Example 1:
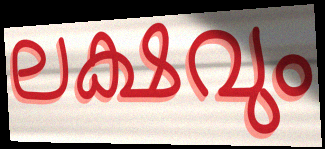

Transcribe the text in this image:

ലക്ഷവും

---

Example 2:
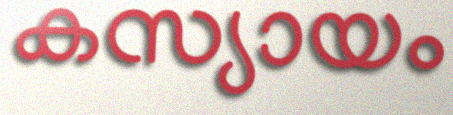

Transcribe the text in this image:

കസ്യായം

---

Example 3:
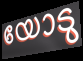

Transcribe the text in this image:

യോടു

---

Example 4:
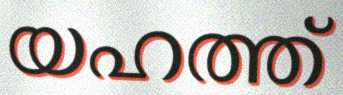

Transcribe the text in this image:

യഹത്ത്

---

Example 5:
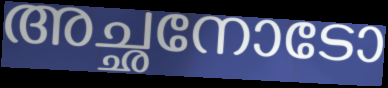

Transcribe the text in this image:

അച്ഛനോടോ